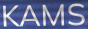
KAMS